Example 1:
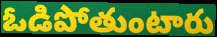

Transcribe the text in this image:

ఓడిపోతుంటారు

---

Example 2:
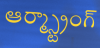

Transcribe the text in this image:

ఆర్మ్స్ట్రాంగ్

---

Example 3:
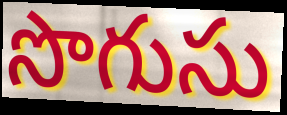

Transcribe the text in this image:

సొగుసు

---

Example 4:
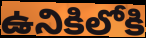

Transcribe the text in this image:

ఉనికిలోకి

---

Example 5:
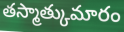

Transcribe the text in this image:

తస్మాత్కుమారం